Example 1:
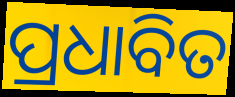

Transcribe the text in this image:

ପ୍ରଧାବିତ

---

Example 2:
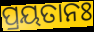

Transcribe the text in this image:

ପ୍ରୟତାନଃ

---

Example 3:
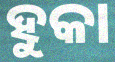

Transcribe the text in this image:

ହୁକା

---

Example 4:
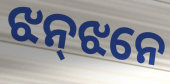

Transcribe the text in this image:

ଝନ୍‌ଝନେ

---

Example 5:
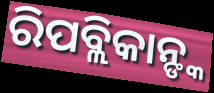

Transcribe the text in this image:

ରିପବ୍ଲିକାନ୍ଙ୍କ